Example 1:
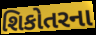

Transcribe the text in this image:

શિકોતરના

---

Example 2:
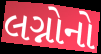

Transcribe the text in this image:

લગ્નોનો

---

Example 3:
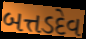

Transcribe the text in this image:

બત્તડદેવ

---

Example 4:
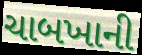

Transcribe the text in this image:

ચાબખાની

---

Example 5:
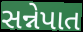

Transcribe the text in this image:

સન્નેપાત